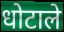
धोटाले